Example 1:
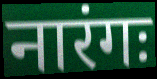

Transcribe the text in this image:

नारंगः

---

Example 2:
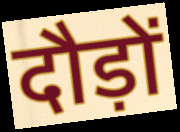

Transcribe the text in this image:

दौड़ों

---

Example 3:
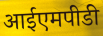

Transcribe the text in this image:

आईएमपीडी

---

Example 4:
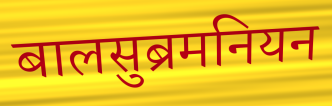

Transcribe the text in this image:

बालसुब्रमनियन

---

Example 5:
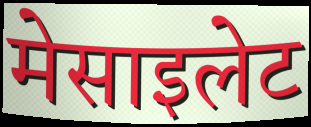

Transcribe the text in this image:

मेसाइलेट